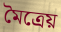
মৈত্রেয়